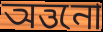
অত্তনো